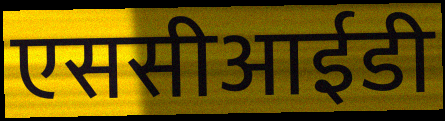
एससीआईडी